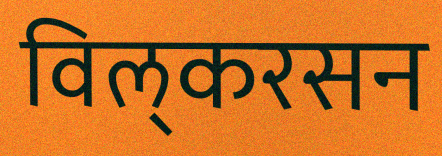
विल्करसन